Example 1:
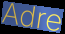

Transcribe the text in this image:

Adre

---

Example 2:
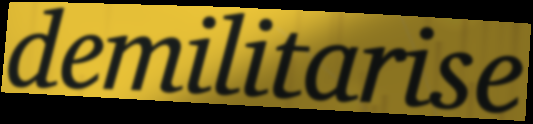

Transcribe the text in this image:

demilitarise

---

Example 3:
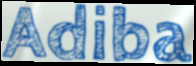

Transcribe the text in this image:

Adiba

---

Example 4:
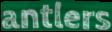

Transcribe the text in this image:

antlers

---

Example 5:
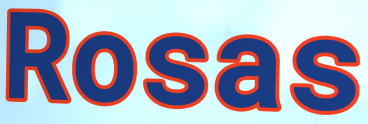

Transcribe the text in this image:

Rosas